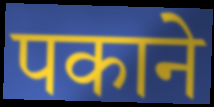
पकाने